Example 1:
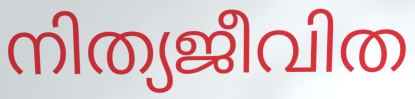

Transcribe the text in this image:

നിത്യജീവിത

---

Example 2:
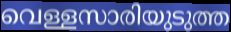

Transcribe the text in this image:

വെള്ളസാരിയുടുത്ത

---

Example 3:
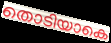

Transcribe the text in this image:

തൊടിയാകെ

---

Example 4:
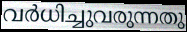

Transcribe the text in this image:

വർധിച്ചുവരുന്നതു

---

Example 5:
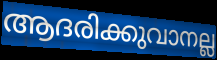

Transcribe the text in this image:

ആദരിക്കുവാനല്ല